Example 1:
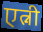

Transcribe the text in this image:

एत्नी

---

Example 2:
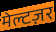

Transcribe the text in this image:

मेल्टज़र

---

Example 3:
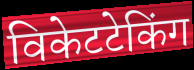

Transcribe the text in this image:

विकेटटेकिंग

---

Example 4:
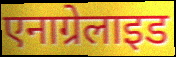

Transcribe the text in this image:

एनाग्रेलाइड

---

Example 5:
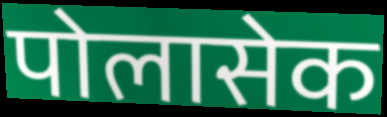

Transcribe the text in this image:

पोलासेक